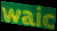
waic